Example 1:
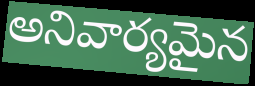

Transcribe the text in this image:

అనివార్యమైన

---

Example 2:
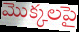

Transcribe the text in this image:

మొక్కలపై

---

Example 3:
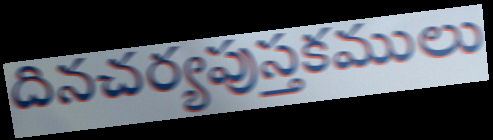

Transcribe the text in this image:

దినచర్యపుస్తకములు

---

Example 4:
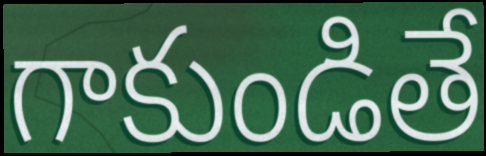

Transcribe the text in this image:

గాకుండితే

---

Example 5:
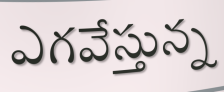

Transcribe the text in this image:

ఎగవేస్తున్న